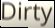
Dirty